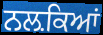
ਨਲ਼ਕਿਆਂ